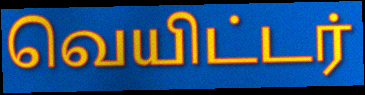
வெயிட்டர்